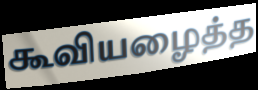
கூவியழைத்த